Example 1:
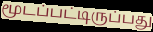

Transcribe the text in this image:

மூடப்பட்டிருப்பது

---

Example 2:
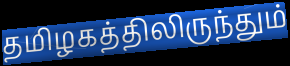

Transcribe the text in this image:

தமிழகத்திலிருந்தும்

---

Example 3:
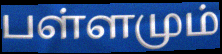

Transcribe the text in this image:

பள்ளமும்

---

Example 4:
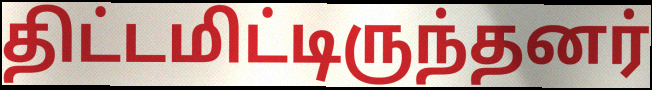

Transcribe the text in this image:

திட்டமிட்டிருந்தனர்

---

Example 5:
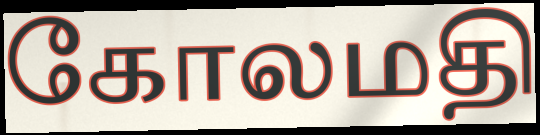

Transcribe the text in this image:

கோலமதி